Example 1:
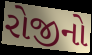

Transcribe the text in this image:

રોજીનો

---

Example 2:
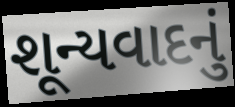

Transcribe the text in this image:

શૂન્યવાદનું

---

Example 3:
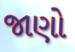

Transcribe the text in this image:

જાણો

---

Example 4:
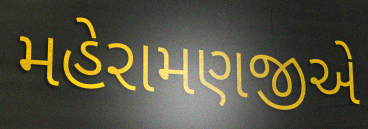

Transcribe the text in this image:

મહેરામણજીએ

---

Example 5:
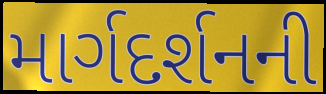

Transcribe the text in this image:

માર્ગદર્શનની